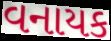
વનાયક